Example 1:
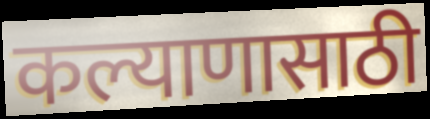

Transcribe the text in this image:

कल्याणासाठी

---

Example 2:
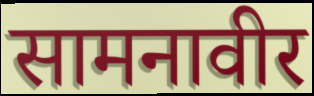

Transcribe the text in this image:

सामनावीर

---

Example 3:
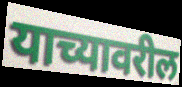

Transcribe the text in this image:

याच्यावरील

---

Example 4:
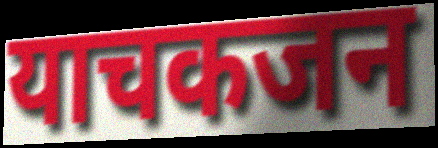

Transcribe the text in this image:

याचकजन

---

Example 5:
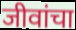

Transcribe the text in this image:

जीवांचा